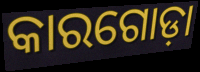
କାରଗୋଡ଼ା